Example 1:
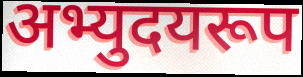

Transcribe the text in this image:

अभ्युदयरूप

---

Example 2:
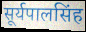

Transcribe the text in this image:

सूर्यपालसिंह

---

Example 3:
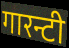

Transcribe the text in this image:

गारन्टी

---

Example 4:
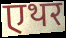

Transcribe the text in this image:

एथर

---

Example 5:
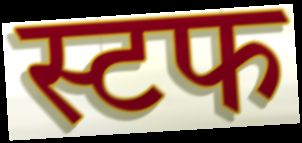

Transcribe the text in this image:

स्टफ